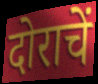
दोराचें